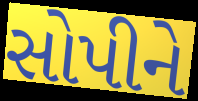
સોપીને